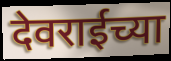
देवराईच्या